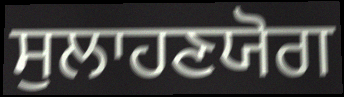
ਸੁਲਾਹਣਯੋਗ